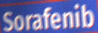
Sorafenib